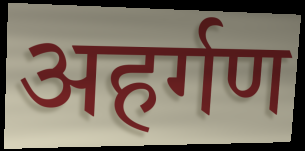
अहर्गण